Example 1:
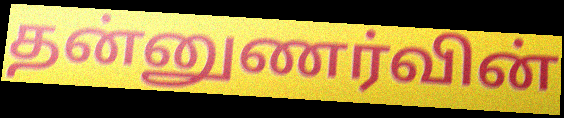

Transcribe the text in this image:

தன்னுணர்வின்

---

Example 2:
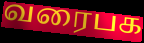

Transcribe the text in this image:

வரைபக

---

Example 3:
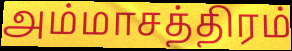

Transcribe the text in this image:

அம்மாசத்திரம்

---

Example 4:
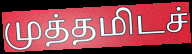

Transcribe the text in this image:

முத்தமிடச்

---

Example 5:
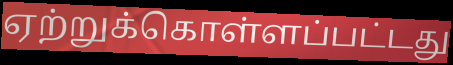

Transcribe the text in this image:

ஏற்றுக்கொள்ளப்பட்டது